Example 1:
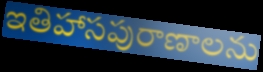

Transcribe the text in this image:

ఇతిహాసపురాణాలను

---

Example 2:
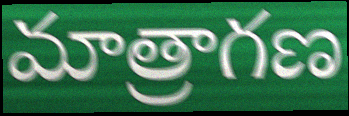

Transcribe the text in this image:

మాత్రాగణ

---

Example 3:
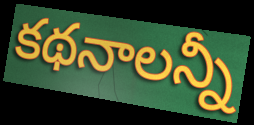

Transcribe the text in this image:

కథనాలన్నీ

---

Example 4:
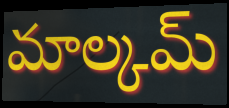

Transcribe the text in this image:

మాల్కమ్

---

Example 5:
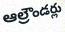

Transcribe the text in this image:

ఆల్రౌండర్లు